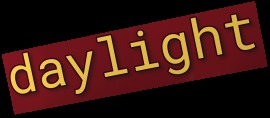
daylight